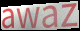
awaz